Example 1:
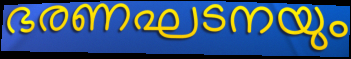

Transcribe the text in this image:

ഭരണഘടനയും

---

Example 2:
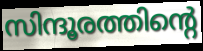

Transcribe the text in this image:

സിന്ദൂരത്തിന്റെ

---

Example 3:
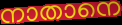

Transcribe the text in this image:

നാതാനെ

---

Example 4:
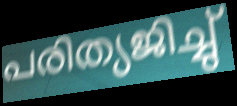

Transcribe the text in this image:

പരിത്യജിച്ചു്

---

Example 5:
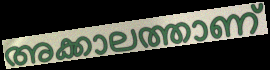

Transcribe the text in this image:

അക്കാലത്താണ്